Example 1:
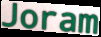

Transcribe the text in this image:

Joram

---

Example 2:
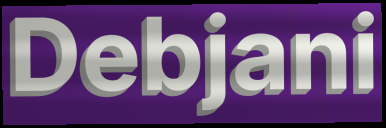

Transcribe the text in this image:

Debjani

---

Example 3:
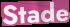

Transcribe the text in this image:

Stade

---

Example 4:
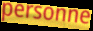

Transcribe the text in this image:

personne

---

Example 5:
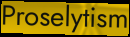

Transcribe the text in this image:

Proselytism